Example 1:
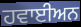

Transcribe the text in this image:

ਹਵਾਈਅਨ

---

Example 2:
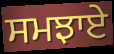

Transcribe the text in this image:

ਸਮਝਾਏ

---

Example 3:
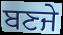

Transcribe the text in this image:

ਬਣਜੇ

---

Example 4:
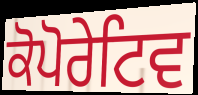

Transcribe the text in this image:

ਕੋਪੋਰੇਟਿਵ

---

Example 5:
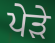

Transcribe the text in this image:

ਪੇੜੇ